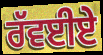
ਰੱਵਈਏ